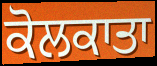
ਕੋਲਕਾਤਾ